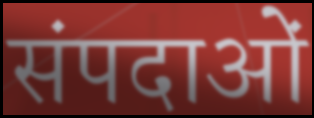
संपदाओं